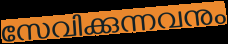
സേവിക്കുന്നവനും